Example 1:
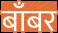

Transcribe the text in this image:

बाँबर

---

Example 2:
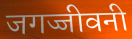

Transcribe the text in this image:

जगज्जीवनी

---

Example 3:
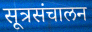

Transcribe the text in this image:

सूत्रसंचालन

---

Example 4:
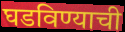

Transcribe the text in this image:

घडविण्याची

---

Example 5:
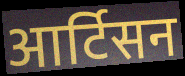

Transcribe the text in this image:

आर्टिसन